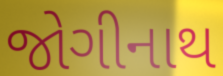
જોગીનાથ